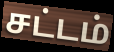
சட்டம்